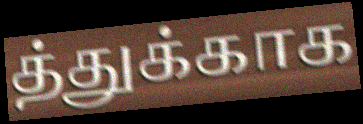
த்துக்காக